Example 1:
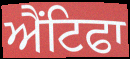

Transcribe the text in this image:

ਐਂਟਿਫਾ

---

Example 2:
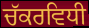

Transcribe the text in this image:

ਚੱਕਰਵਿਧੀ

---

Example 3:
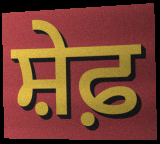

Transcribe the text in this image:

ਸ਼ੇਫ਼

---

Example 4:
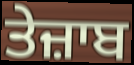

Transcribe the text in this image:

ਤੇਜ਼ਾਬ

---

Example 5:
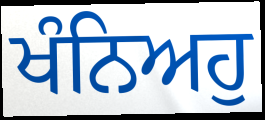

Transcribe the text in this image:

ਖੰਨਿਅਹੁ